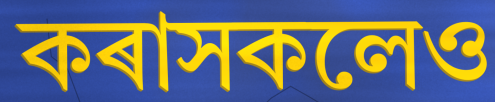
কৰাসকলেও